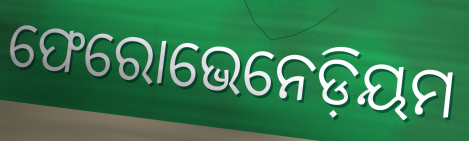
ଫେରୋଭେନେଡ଼ିୟମ